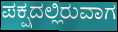
ಪಕ್ಷದಲ್ಲಿರುವಾಗ